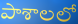
పాశాలలో